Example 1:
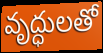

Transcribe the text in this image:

వృద్ధులతో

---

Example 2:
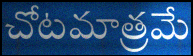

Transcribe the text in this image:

చోటమాత్రమే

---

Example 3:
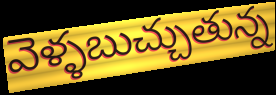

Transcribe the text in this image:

వెళ్ళబుచ్చుతున్న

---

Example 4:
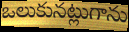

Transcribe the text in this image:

ఒలుకునట్లుగాను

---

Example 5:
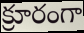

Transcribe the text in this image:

క్రూరంగా